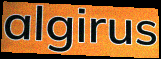
algirus